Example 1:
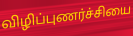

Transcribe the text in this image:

விழிப்புணர்ச்சியை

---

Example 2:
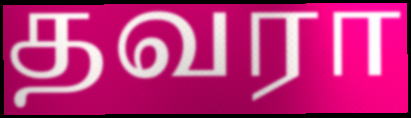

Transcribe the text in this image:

தவரா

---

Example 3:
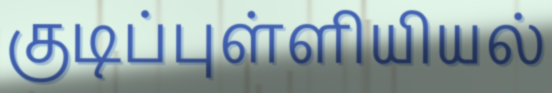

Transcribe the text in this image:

குடிப்புள்ளியியல்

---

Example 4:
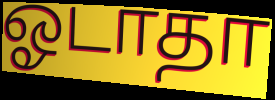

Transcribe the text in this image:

ஓடாதா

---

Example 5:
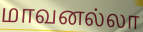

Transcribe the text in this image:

மாவனல்லா